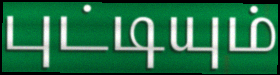
புட்டியும்